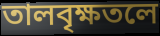
তালবৃক্ষতলে